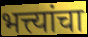
भत्त्यांचा